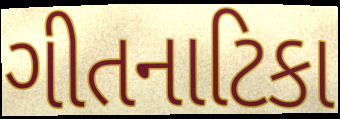
ગીતનાટિકા